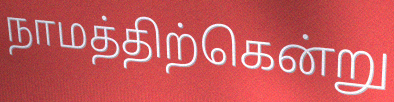
நாமத்திற்கென்று